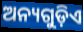
ଅନ୍ୟଗୁଡ଼ିଏ